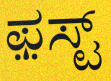
ಫ಼ಸ್ಟ್